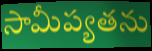
సామీప్యతను